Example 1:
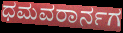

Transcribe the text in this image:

ಧಮವರಾರ್ನಗ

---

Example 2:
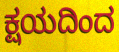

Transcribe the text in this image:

ಕ್ಷಯದಿಂದ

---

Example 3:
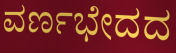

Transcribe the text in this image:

ವರ್ಣಭೇದದ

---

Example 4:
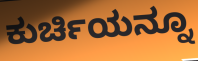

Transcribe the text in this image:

ಕುರ್ಚಿಯನ್ನೂ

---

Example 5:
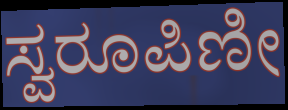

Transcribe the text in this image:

ಸ್ವರೂಪಿಣೀ